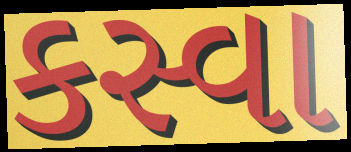
કસ્વા